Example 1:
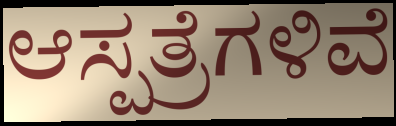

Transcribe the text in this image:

ಆಸ್ಪತ್ರೆಗಳಿವೆ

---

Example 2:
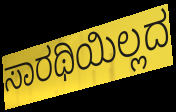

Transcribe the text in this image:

ಸಾರಥಿಯಿಲ್ಲದ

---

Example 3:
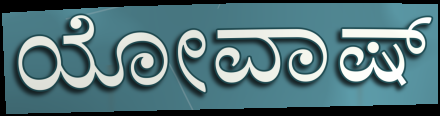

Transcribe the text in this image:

ಯೋವಾಷ್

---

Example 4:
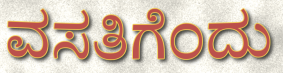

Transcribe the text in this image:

ವಸತಿಗೆಂದು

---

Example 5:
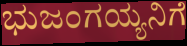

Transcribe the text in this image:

ಭುಜಂಗಯ್ಯನಿಗೆ